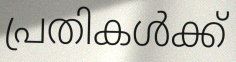
പ്രതികൾക്ക്